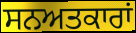
ਸਨਅਤਕਾਰਾਂ